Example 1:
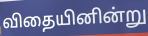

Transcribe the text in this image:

விதையினின்று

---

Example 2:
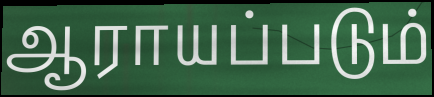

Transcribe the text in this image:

ஆராயப்படும்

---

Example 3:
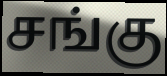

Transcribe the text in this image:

சங்கு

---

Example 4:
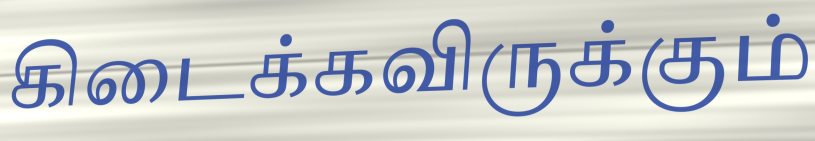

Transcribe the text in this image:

கிடைக்கவிருக்கும்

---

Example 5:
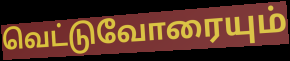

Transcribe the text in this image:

வெட்டுவோரையும்